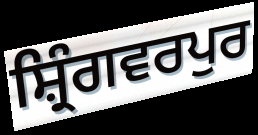
ਸ਼੍ਰਿੰਗਵਰਪੁਰ